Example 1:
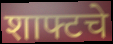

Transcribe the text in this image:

शाफ्टचे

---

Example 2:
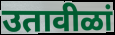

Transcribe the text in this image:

उतावीळां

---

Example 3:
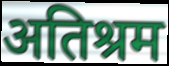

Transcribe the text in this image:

अतिश्रम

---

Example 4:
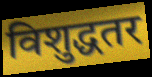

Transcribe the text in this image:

विशुद्धतर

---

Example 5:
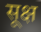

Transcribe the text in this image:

सूक्ष